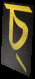
চ্